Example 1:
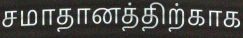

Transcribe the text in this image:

சமாதானத்திற்காக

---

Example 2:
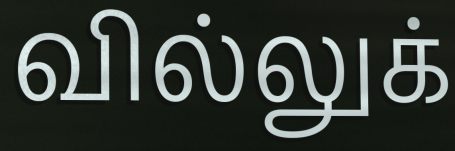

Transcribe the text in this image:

வில்லுக்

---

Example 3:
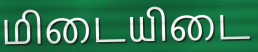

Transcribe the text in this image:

மிடையிடை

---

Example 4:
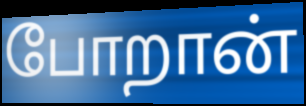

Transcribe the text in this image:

போறான்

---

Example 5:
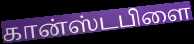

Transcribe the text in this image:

கான்ஸ்டபிளை